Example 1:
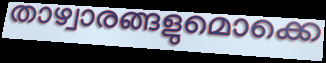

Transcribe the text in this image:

താഴ്വാരങ്ങളുമൊക്കെ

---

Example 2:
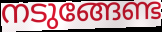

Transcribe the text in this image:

നടുങ്ങേണ്ട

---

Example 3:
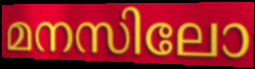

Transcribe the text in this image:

മനസിലോ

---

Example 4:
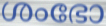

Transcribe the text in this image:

ശംഭോ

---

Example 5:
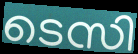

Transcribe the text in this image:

ടെസി